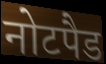
नोटपैड